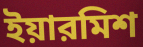
ইয়ারমিশ